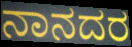
ನಾನದರ